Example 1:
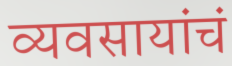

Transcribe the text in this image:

व्यवसायांचं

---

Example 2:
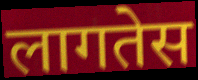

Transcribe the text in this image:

लागतेस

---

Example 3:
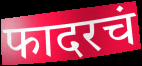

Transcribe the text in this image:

फादरचं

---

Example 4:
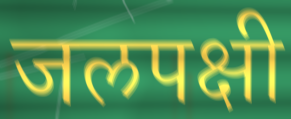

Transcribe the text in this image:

जलपक्षी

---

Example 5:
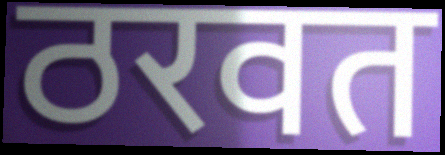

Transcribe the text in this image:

ठरवत